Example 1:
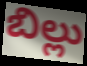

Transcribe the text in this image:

బిల్లు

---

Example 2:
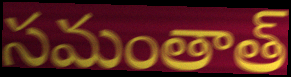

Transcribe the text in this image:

సమంతాత్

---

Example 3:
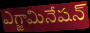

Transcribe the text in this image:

ఎగ్జామినేషన్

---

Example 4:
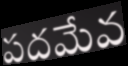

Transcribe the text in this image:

పదమేవ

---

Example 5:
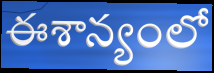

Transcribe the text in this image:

ఈశాన్యంలో